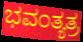
ಭವಂತ್ಯತ್ರ